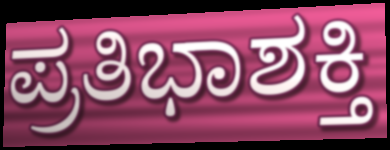
ಪ್ರತಿಭಾಶಕ್ತಿ